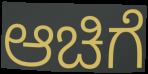
ಆಚಿಗೆ